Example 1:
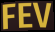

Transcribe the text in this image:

FEV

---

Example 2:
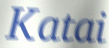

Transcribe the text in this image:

Katai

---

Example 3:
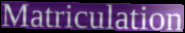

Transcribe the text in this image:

Matriculation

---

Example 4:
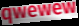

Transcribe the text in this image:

qwewew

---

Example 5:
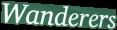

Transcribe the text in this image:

Wanderers